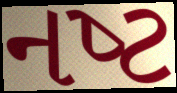
નષ્‍ટ